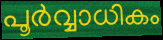
പൂർവ്വാധികം